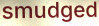
smudged